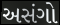
અસંગો